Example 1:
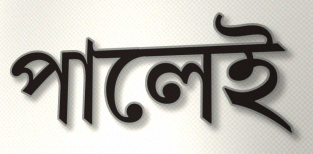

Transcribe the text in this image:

পালেই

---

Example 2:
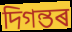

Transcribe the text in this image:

দিগন্তৰ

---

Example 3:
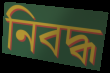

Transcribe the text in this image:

নিবদ্ধ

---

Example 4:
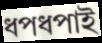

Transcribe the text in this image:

ধপধপাই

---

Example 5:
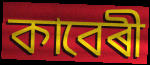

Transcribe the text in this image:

কাবেৰী